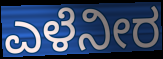
ಎಳೆನೀರ